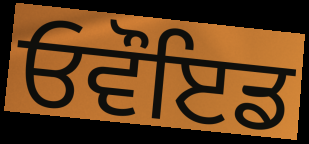
ਓਵੌਇਡ